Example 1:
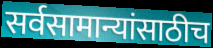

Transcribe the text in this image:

सर्वसामान्यांसाठीच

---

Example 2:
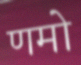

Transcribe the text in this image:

णमो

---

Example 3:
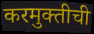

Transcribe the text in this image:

करमुक्तीची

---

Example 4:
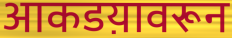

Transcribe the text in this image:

आकडय़ावरून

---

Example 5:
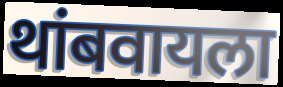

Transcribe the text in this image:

थांबवायला